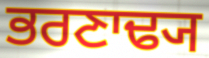
ਭਰਣਾਢ੍ਯ